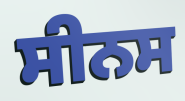
ਸੀਨਸ